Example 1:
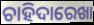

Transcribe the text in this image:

ଚାହିଦାରେଖା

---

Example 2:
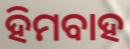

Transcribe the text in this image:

ହିମବାହ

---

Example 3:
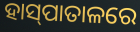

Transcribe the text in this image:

ହାସ୍‌ପାତାଳରେ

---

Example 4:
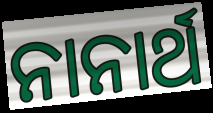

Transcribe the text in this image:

ନାନାର୍ଥ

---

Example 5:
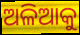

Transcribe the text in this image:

ଅଳିଆକୁ